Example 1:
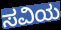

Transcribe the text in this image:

ಸವಿಯ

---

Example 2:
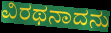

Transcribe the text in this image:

ವಿರಥನಾದನು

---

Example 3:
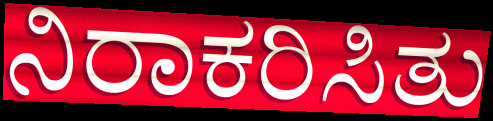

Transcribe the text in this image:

ನಿರಾಕರಿಸಿತು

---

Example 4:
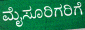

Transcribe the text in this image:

ಮೈಸೂರಿಗರಿಗೆ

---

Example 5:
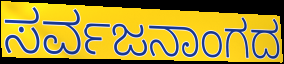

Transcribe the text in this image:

ಸರ್ವಜನಾಂಗದ